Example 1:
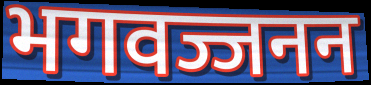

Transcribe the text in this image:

भगवज्जनन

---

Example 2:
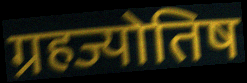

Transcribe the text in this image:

ग्रहज्योतिष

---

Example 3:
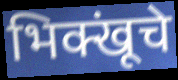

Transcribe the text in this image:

भिक्खूंचे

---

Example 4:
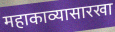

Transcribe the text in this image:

महाकाव्यासारखा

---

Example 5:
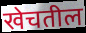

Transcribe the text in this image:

खेचतील